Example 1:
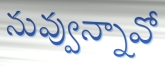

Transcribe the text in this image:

నువ్వున్నావో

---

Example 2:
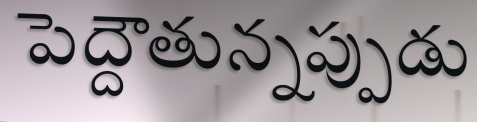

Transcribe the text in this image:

పెద్దౌతున్నప్పుడు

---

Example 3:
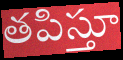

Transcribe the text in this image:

తపిస్తూ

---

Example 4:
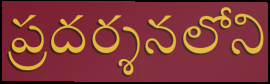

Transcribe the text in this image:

ప్రదర్శనలోని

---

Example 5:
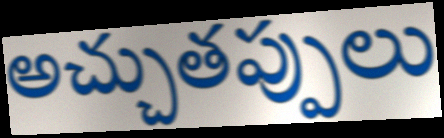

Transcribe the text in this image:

అచ్చుతప్పులు